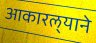
आकारल्याने